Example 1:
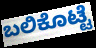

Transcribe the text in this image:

ಬಲಿಕೊಟ್ಟೆ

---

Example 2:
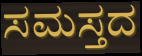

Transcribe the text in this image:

ಸಮಸ್ತದ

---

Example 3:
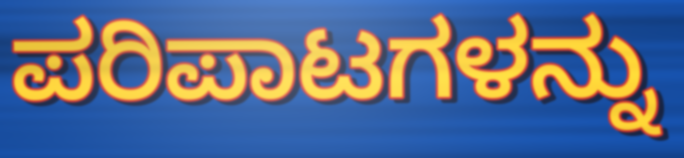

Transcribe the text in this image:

ಪರಿಪಾಟಗಳನ್ನು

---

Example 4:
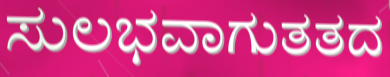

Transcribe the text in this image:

ಸುಲಭವಾಗುತತದ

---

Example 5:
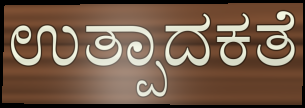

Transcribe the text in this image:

ಉತ್ಪಾದಕತೆ